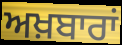
ਅਖ਼ਬਾਰਾਂ